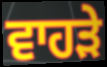
ਵਾਹੜੇ